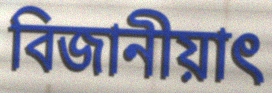
বিজানীয়াৎ